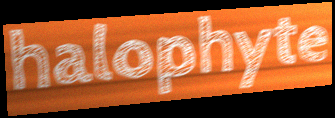
halophyte